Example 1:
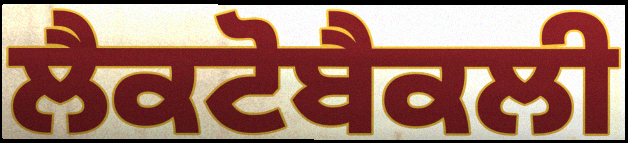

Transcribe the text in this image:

ਲੈਕਟੋਬੈਕਲੀ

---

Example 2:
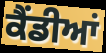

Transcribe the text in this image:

ਕੈਂਡੀਆਂ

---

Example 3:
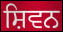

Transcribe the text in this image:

ਸ਼ਿਵਨ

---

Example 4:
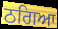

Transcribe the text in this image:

ਠਗਿਆ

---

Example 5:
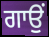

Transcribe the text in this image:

ਗਾਉਂ